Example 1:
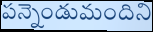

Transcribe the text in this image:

పన్నెండుమందిని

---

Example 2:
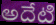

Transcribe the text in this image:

అదేటి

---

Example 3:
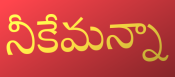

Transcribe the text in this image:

నీకేమన్నా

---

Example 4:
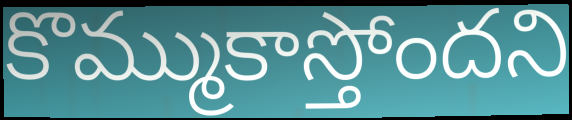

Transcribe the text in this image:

కొమ్ముకాస్తోందని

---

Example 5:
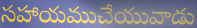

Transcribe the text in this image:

సహాయముచేయువాడు